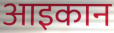
आइकान